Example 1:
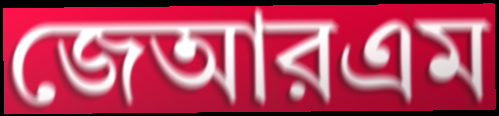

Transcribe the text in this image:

জেআরএম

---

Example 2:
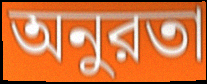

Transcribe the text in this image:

অনুরতা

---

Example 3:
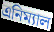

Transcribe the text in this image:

এনিম্যাল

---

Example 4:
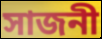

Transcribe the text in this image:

সাজনী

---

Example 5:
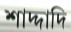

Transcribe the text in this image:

শাদ্দাদি